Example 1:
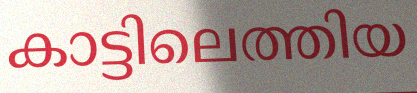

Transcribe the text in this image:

കാട്ടിലെത്തിയ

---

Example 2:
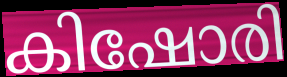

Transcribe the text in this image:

കിഷോരി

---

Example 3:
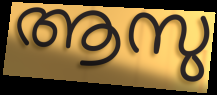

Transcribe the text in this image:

ആസു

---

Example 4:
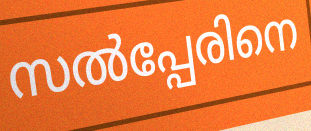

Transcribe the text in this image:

സൽപ്പേരിനെ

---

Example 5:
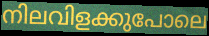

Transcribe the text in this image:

നിലവിളക്കുപോലെ